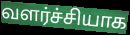
வளர்ச்சியாக